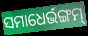
ସମାଧେର୍ଭଙ୍ଗମ୍